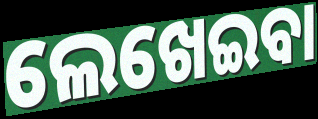
ଲେଖେଇବା